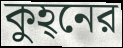
কুহ্‌নের